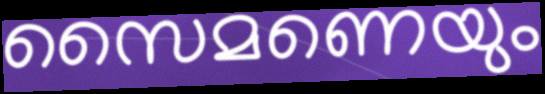
സൈമണെയും